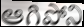
ఆగిపోని